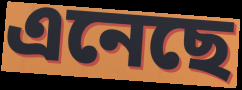
এনেছে